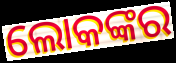
ଲୋକଙ୍କର